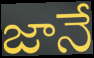
జానే